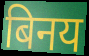
बिनय